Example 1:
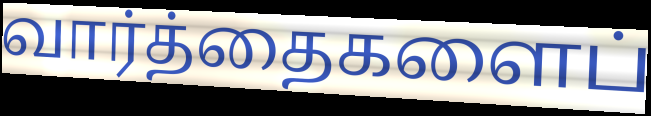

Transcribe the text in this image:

வார்த்தைகளைப்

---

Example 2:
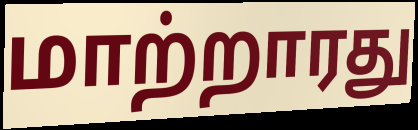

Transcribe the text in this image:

மாற்றாரது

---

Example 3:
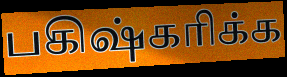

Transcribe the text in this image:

பகிஷ்கரிக்க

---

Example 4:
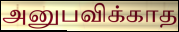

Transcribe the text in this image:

அனுபவிக்காத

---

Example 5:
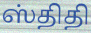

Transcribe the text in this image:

ஸ்திதி